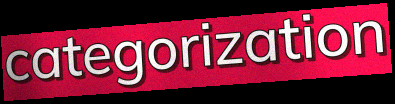
categorization